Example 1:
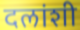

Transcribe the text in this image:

दलांशी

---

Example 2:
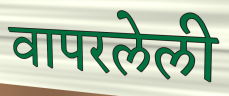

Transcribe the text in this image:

वापरलेली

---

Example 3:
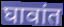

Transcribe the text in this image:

घावांत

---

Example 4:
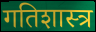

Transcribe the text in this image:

गतिशास्त्र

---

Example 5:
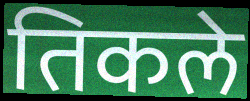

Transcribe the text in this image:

तिकले